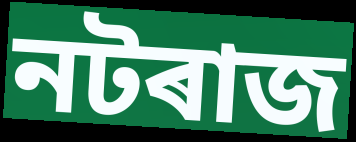
নটৰাজ